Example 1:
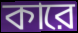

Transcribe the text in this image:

কারে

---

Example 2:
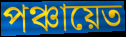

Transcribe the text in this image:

পঞ্চায়েত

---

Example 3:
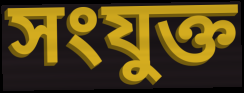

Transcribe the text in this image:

সংযুক্ত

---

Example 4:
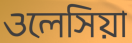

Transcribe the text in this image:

ওলেসিয়া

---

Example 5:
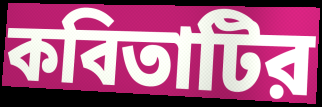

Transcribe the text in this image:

কবিতাটির